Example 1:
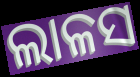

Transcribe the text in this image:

ଲାଳସ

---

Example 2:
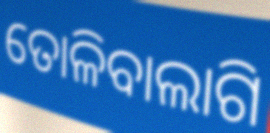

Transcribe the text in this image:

ତୋଳିବାଲାଗି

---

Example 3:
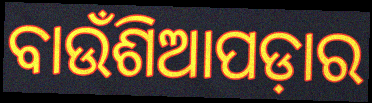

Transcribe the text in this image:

ବାଉଁଶିଆପଡ଼ାର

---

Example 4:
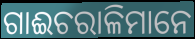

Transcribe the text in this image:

ଗାଈଚରାଳିମାନେ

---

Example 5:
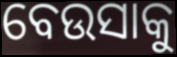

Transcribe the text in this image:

ବେଉସାକୁ